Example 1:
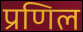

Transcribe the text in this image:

प्रणिल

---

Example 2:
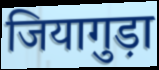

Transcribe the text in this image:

जियागुड़ा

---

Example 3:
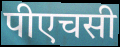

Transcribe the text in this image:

पीएचसी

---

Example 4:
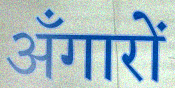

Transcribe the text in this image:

अँगारों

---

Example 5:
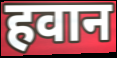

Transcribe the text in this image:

हवान